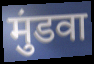
मुंडवा